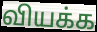
வியக்க